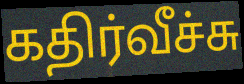
கதிர்வீச்சு